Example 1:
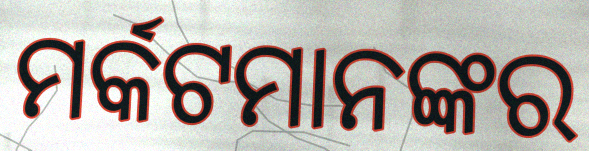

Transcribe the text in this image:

ମର୍କଟମାନଙ୍କର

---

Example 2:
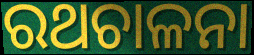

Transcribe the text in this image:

ରଥଚାଳନା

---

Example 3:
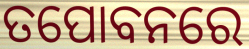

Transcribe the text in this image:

ତପୋବନରେ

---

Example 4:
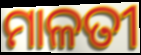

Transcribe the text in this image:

ମାଳତୀ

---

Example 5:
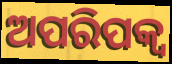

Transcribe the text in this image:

ଅପରିପକ୍ୱ